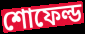
শোফেল্ড